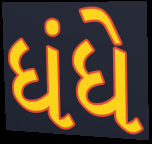
ધંધે